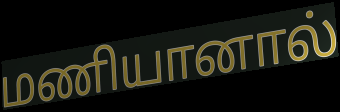
மணியானால்